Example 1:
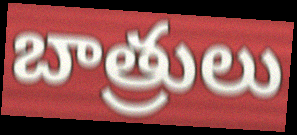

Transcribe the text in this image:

బాత్రులు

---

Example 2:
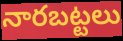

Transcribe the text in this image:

నారబట్టలు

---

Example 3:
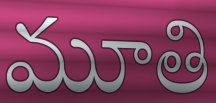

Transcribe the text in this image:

మూతి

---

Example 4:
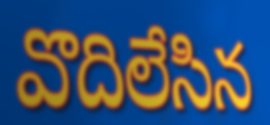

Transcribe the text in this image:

వొదిలేసిన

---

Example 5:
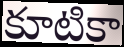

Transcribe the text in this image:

కూటికా